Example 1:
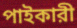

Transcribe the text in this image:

পাইকারী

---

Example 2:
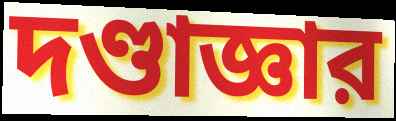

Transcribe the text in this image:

দণ্ডাজ্ঞার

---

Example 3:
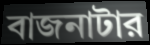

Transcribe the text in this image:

বাজনাটার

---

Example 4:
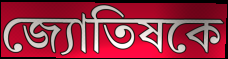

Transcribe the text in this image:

জ্যোতিষকে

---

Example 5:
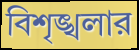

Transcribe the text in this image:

বিশৃঙ্খলার